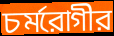
চর্মরোগীর